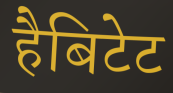
हैबिटेट